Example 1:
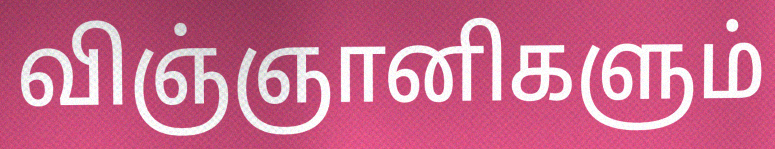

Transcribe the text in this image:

விஞ்ஞானிகளும்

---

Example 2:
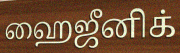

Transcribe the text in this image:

ஹைஜீனிக்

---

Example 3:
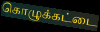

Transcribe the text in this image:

கொழுக்கட்டை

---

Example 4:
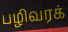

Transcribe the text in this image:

பழிவரக்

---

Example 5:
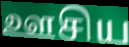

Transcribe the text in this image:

ஊசிய